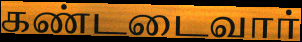
கண்டடைவார்